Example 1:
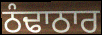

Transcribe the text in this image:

ਠੰਢਾਠਾਰ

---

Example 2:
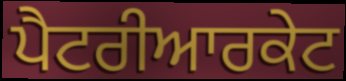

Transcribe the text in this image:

ਪੈਟਰੀਆਰਕੇਟ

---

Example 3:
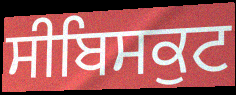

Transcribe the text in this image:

ਸੀਬਿਸਕੁਟ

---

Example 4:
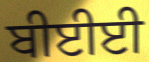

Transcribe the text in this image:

ਬੀਈਈ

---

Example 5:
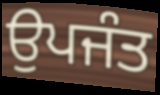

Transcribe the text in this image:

ਉਪਜੰਤ